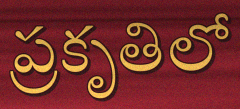
ప్రకృతిలో